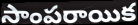
సాంపరాయిక